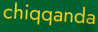
chiqqanda